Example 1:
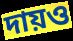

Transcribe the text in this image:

দায়ও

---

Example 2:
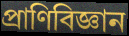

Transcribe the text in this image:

প্রাণিবিজ্ঞান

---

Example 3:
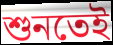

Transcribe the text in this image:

শুনতেই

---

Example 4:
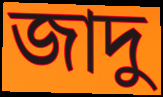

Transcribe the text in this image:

জাদু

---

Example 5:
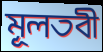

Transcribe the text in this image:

মূলতবী